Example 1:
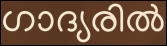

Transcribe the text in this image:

ഗാദ്യരിൽ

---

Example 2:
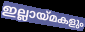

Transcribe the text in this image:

ഇല്ലായ്മകളും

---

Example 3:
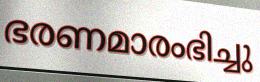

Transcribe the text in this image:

ഭരണമാരംഭിച്ചു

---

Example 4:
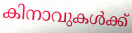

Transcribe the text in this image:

കിനാവുകൾക്ക്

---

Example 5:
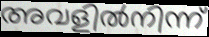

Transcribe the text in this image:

അവളിൽനിന്ന്